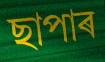
ছাপাৰ